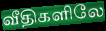
வீதிகளிலே